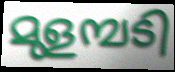
മുളമ്പടി